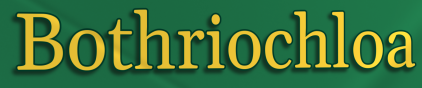
Bothriochloa